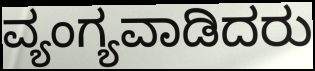
ವ್ಯಂಗ್ಯವಾಡಿದರು